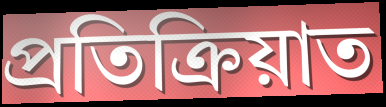
প্ৰতিক্ৰিয়াত